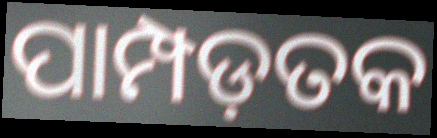
ପାମ୍ପଡ଼ତକ